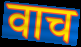
वाच